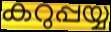
കറുപ്പയ്യ